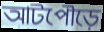
আটপৌড়ে